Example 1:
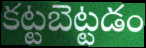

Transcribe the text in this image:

కట్టబెట్టడం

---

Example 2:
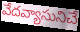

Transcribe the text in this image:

వేదవ్యాసునిచే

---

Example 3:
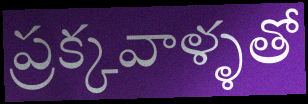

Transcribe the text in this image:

ప్రక్కవాళ్ళతో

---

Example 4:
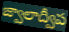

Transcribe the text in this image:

జ్వాలాద్వీప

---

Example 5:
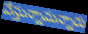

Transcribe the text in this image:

వేస్తున్నామన్నారు